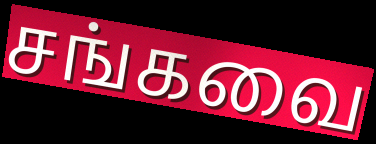
சங்கவை